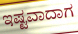
ಇಷ್ಟವಾದಾಗ